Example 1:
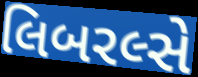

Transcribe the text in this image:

લિબરલ્સે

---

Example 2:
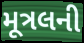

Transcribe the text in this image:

મૂત્રલની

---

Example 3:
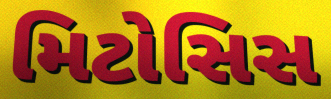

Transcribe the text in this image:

મિટોસિસ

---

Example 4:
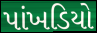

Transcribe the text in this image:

પાંખડિયો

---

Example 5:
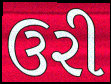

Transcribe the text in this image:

ઉરી